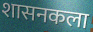
शासनकला